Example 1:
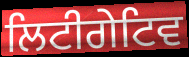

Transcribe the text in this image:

ਲਿਟੀਗੇਟਿਵ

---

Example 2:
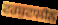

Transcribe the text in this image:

ਟਰਬੁਟਾਲੀਨ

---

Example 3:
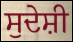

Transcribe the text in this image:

ਸੁਦੇਸ਼ੀ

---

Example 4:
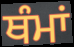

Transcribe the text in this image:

ਥੰਮਾਂ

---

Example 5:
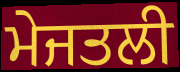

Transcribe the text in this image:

ਮੇਜਤਲੀ